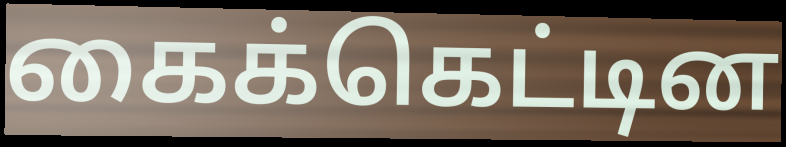
கைக்கெட்டின